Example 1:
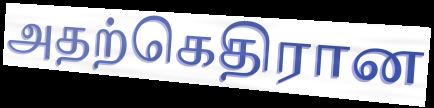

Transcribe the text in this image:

அதற்கெதிரான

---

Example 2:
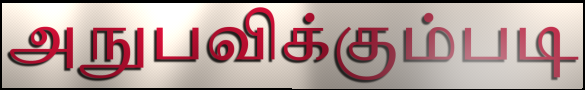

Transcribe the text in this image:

அநுபவிக்கும்படி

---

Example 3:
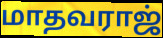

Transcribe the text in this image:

மாதவராஜ்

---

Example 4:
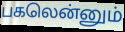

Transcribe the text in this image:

பகலென்னும்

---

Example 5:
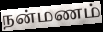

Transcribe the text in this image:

நன்மணம்